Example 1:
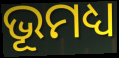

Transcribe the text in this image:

ଭୂମଧ୍ୟ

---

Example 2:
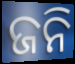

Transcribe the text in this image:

ଜନି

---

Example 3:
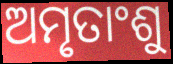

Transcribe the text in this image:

ଅମୃତାଂଶୁ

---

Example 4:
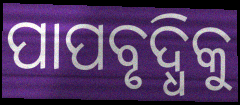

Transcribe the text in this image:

ପାପବୃଦ୍ଧିକୁ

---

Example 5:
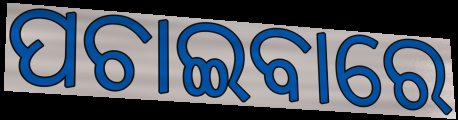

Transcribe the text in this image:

ପଚାଇବାରେ